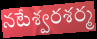
నటేశ్వరశర్మ